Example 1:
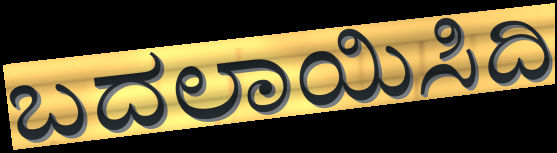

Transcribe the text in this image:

ಬದಲಾಯಿಸಿದಿ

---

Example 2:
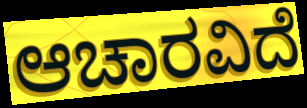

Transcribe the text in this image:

ಆಚಾರವಿದೆ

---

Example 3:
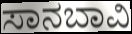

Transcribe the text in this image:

ಸಾನಬಾವಿ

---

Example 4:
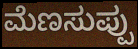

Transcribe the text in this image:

ಮೆಣಸುಪ್ಪು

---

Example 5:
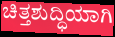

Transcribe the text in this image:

ಚಿತ್ತಶುದ್ಧಿಯಾಗಿ